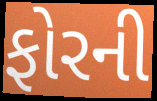
ફોરની